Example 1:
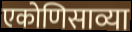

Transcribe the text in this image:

एकोणिसाव्या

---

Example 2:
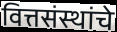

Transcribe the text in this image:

वित्तसंस्थांचे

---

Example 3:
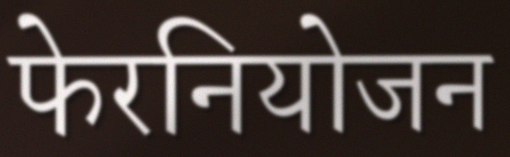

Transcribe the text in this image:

फेरनियोजन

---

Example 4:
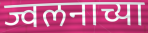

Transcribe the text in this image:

ज्वलनाच्या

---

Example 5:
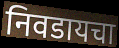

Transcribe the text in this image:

निवडायचा